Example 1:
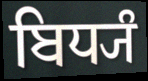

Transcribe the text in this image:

ਬਿਧ੍ਯੰ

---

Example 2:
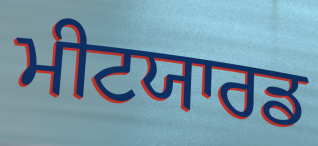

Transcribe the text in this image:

ਮੀਟਯਾਰਡ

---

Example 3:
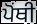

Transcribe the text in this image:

ਪੋਂਥੀ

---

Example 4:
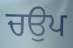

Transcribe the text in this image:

ਚਉਪ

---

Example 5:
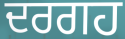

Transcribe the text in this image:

ਦਰਗਹ